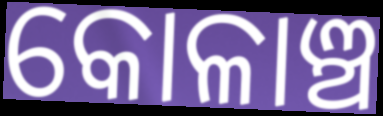
କୋଳାଞ୍ଚ